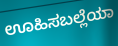
ಊಹಿಸಬಲ್ಲೆಯಾ